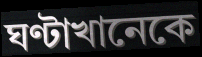
ঘণ্টাখানেকে